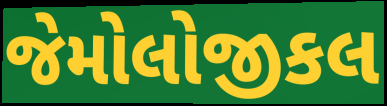
જેમોલોજીકલ